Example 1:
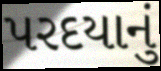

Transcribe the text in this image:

પરદયાનું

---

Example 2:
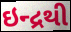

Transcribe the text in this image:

ઇન્દ્રથી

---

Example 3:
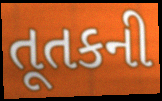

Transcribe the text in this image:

તૂતકની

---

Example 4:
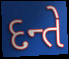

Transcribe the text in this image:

દન્તે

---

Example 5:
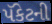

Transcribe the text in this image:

પૅકેટની